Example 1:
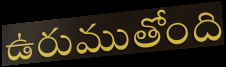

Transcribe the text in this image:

ఉరుముతోంది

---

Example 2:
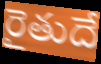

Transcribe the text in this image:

రైతుదే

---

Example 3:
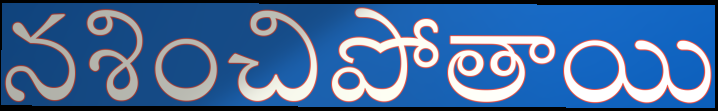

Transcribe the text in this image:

నశించిపోతాయి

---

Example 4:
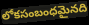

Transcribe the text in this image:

లోకసంబంధమైనది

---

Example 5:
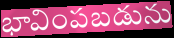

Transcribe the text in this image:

భావింపబడును